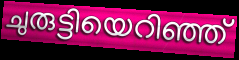
ചുരുട്ടിയെറിഞ്ഞ്